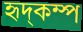
হৃদ্কম্প